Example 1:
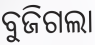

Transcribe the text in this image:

ବୁଜିଗଲା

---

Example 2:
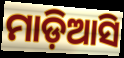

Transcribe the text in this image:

ମାଡ଼ିଆସି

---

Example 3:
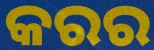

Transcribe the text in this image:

କରର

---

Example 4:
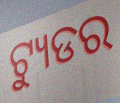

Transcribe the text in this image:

ଟ୍ୟୁଡର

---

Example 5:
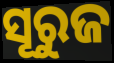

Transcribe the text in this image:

ସୂରୁଜ